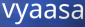
vyaasa